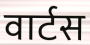
वार्टस